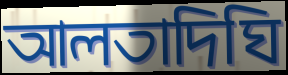
আলতাদিঘি